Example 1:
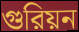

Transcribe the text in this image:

গুরিয়ন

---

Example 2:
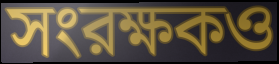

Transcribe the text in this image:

সংরক্ষকও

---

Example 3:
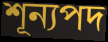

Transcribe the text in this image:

শূন্যপদ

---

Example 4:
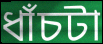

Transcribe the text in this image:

ধাঁচটা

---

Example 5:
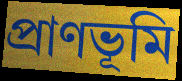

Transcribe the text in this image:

প্রাণভূমি